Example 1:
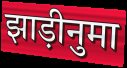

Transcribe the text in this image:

झाड़ीनुमा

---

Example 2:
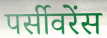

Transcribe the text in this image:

पर्सीवरेंस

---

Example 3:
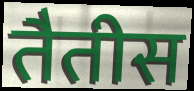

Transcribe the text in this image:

तैतीस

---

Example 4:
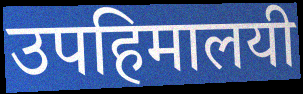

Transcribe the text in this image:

उपहिमालयी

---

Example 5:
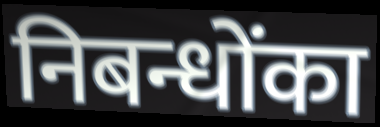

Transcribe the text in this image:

निबन्धोंका